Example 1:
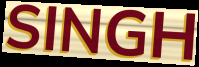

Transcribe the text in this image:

SINGH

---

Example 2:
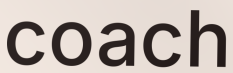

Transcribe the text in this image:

coach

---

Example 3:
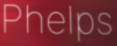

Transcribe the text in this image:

Phelps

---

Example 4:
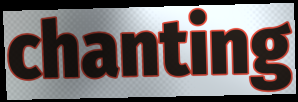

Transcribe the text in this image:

chanting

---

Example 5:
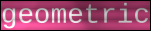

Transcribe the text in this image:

geometric